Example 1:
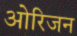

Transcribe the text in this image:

ओरिजन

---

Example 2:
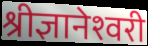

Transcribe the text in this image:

श्रीज्ञानेश्वरी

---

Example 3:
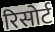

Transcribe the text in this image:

रिसोर्ट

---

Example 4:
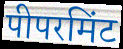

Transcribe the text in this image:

पीपरमिंट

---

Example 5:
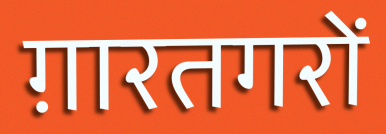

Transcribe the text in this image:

ग़ारतगरों